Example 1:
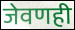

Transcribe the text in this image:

जेवणही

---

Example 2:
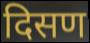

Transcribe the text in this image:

दिसण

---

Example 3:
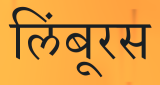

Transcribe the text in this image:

लिंबूरस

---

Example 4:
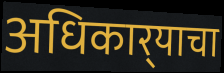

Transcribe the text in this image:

अधिकार्‍याचा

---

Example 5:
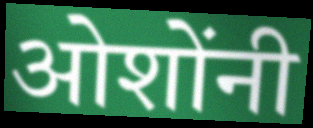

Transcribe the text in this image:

ओशोंनी